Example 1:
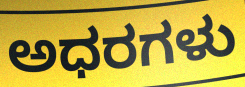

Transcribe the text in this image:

ಅಧರಗಳು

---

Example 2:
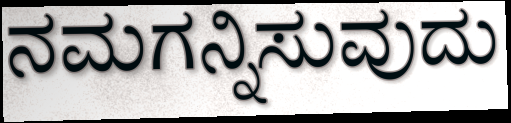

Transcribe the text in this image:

ನಮಗನ್ನಿಸುವುದು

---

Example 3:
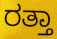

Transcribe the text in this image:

ರತ್ತಾ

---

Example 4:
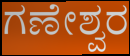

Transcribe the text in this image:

ಗಣೇಶ್ವರ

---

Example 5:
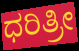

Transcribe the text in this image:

ಧರಿತ್ರೀ